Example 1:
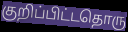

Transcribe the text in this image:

குறிப்பிட்டதொரு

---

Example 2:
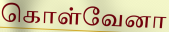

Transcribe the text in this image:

கொள்வேனா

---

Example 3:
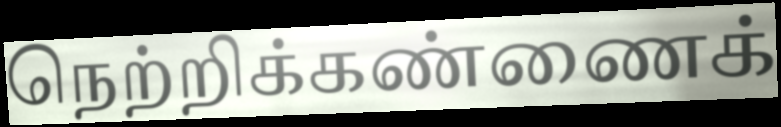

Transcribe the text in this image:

நெற்றிக்கண்ணைக்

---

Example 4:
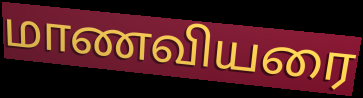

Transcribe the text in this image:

மாணவியரை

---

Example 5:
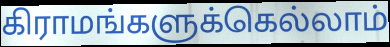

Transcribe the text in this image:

கிராமங்களுக்கெல்லாம்